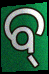
ବ୍